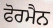
ਫੋਰਮੈਨ